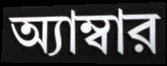
অ্যাম্বার